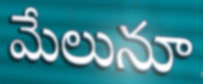
మేలునూ